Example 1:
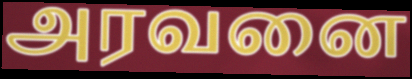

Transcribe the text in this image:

அரவனை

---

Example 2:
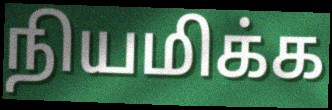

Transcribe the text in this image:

நியமிக்க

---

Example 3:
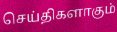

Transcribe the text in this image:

செய்திகளாகும்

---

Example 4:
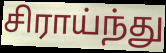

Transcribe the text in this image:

சிராய்ந்து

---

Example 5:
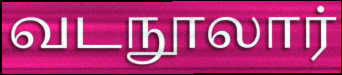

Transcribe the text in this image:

வடநூலார்